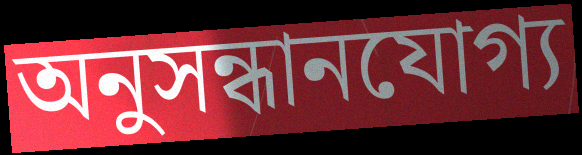
অনুসন্ধানযোগ্য